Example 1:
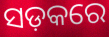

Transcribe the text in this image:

ସଡ଼କରେ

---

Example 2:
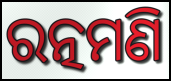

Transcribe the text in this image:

ରତ୍ନମଣି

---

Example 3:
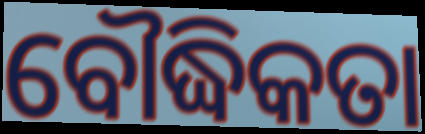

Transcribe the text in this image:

ବୌଦ୍ଧିକତା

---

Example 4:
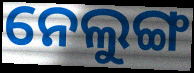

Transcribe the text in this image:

ନେଲୁଙ୍ଗ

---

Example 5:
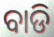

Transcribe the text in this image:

ବାଡି